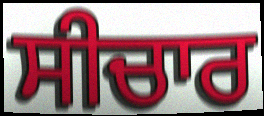
ਸੀਚਾਰ